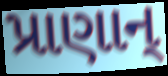
પ્રાણાન્